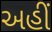
અહીઁ